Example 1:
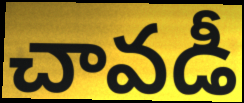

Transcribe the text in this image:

చావడీ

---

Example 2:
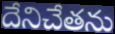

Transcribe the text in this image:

దేనిచేతను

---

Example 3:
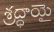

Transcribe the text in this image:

శ్రద్ధాయై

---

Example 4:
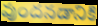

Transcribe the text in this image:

వుందనడానికి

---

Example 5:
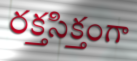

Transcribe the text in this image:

రక్తసిక్తంగా